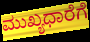
ಮುಖ್ಯಧಾರೆಗೆ